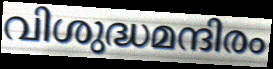
വിശുദ്ധമന്ദിരം